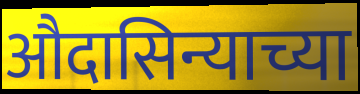
औदासिन्याच्या